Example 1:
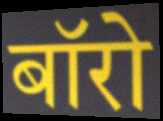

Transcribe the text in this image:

बॉरो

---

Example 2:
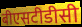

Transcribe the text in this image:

बीएसटीडीसी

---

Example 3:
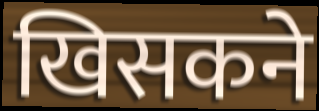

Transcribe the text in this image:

खिसकने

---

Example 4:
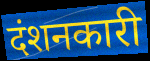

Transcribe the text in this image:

दंशनकारी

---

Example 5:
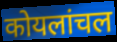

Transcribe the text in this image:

कोयलांचल